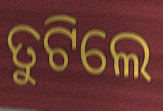
ତୁଟିଲେ